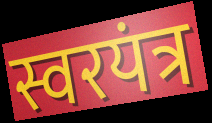
स्वरयंत्र